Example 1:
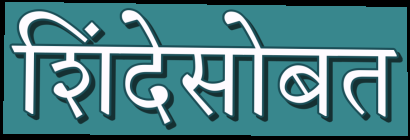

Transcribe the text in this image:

शिंदेसोबत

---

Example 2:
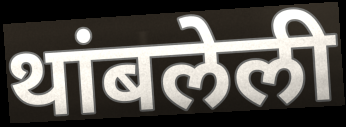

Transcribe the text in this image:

थांबलेली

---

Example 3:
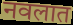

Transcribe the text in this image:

नवलात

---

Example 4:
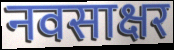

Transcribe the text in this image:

नवसाक्षर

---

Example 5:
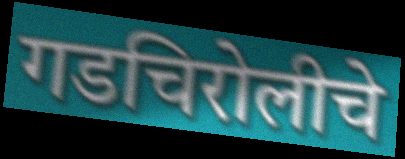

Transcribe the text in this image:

गडचिरोलीचे